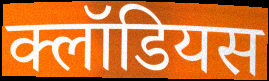
क्लॉडियस